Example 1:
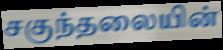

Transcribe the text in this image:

சகுந்தலையின்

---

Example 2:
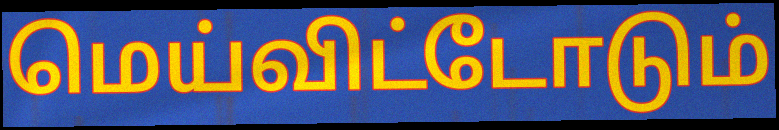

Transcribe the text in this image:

மெய்விட்டோடும்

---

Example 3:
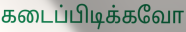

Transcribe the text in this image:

கடைப்பிடிக்கவோ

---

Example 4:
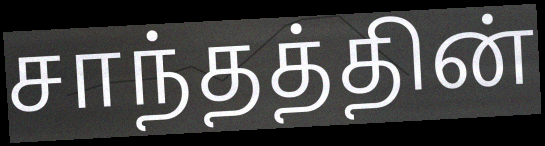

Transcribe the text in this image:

சாந்தத்தின்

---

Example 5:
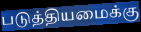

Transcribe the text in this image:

படுத்தியமைக்கு